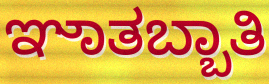
ಞಾತಬ್ಬಾತಿ